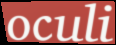
oculi